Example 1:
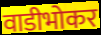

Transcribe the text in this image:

वाडीभोकर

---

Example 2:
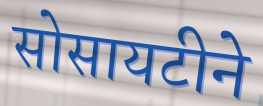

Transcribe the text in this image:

सोसायटीने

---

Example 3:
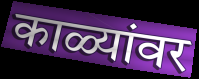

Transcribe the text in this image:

काळ्यांवर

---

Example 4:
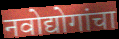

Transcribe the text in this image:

नवोद्योगांचा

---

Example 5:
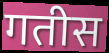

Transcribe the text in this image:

गतीस